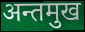
अन्तमुख